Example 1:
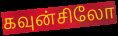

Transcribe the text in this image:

கவுன்சிலோ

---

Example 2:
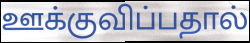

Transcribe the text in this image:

ஊக்குவிப்பதால்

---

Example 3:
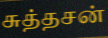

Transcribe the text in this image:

சுத்தசன்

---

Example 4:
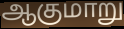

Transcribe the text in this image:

ஆகுமாறு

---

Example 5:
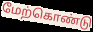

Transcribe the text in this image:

மேற்கொண்டு